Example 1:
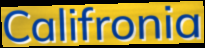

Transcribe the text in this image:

Califronia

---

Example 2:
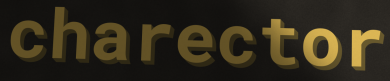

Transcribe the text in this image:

charector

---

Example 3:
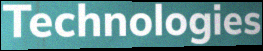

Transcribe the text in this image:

Technologies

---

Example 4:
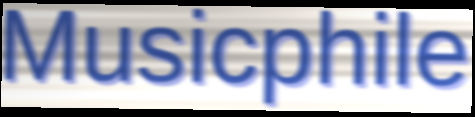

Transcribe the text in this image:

Musicphile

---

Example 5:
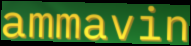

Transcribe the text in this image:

ammavin